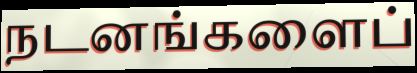
நடனங்களைப்